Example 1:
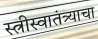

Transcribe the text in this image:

स्त्रीस्वातंत्र्याचा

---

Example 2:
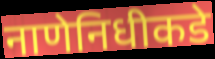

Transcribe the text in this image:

नाणेनिधीकडे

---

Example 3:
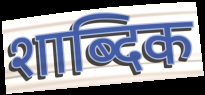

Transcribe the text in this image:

शाब्दिक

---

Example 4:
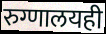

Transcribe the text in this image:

रुग्णालयही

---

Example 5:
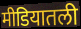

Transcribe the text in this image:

मीडियातली